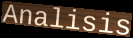
Analisis